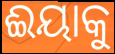
ଈୟାକୁ